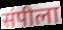
संपीला